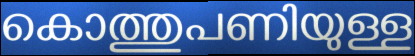
കൊത്തുപണിയുള്ള